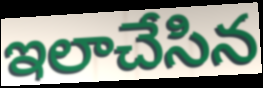
ఇలాచేసిన